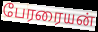
பேரரையன்